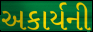
અકાર્યની